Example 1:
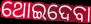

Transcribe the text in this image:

ଥୋଇଦେବା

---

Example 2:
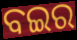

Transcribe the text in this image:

ବଇର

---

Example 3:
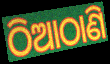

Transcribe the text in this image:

ଠିଆଠାଣି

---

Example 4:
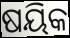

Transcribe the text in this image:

ଷୟିକ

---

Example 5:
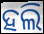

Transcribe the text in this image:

ହଲି